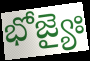
భోజ్యైః